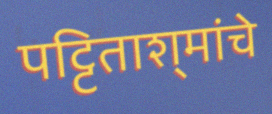
पट्टिताश्मांचे